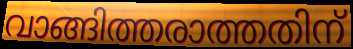
വാങ്ങിത്തരാത്തതിന്